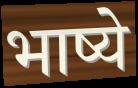
भाष्ये